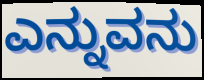
ಎನ್ನುವನು